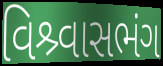
વિશ્ર્વાસભંગ